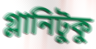
গ্লানিটুকু